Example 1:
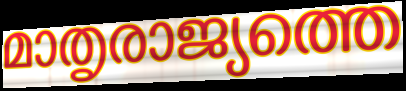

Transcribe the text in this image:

മാതൃരാജ്യത്തെ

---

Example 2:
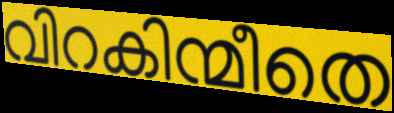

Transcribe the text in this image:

വിറകിന്മീതെ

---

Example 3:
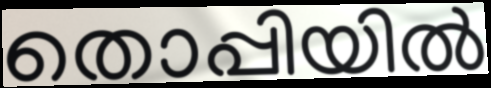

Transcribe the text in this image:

തൊപ്പിയിൽ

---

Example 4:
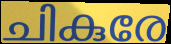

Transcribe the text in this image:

ചികുരേ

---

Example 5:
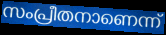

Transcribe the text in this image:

സംപ്രീതനാണെന്ന്